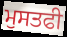
ਮੁਸਤਫੀ